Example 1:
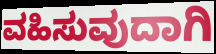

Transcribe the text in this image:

ವಹಿಸುವುದಾಗಿ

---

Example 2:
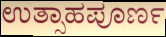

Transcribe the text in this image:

ಉತ್ಸಾಹಪೂರ್ಣ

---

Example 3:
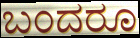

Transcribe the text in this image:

ಬಂದರೂ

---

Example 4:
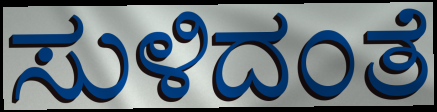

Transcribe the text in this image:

ಸುಳಿದಂತೆ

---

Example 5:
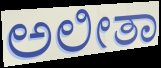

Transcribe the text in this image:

ಅಲೀತಾ